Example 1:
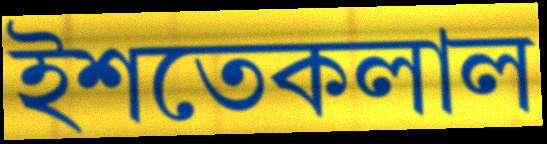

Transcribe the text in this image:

ইশতেকলাল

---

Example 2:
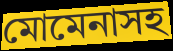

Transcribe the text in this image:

মোমেনাসহ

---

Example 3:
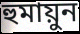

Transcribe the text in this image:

হুমায়ুন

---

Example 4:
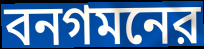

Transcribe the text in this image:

বনগমনের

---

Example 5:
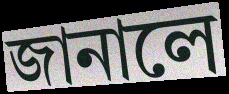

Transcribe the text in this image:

জানালে